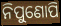
ନିପୁଣୋପି